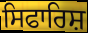
ਸਿਫਾਰਿਸ਼